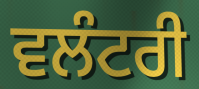
ਵਲੰਟਰੀ